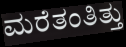
ಮರೆತಂತಿತ್ತು